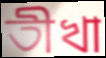
তীখা